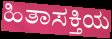
ಹಿತಾಸಕ್ತಿಯ